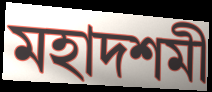
মহাদশমী